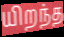
யிறந்த